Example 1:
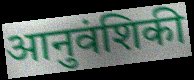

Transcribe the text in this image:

आनुवंशिकी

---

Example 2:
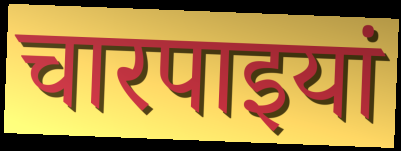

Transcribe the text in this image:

चारपाइयां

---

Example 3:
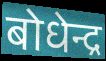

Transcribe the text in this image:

बोधेन्द्र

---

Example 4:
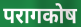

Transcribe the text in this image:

परागकोष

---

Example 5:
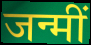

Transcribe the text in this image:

जन्मीं